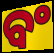
ବଂ